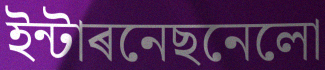
ইন্টাৰনেছনেলো